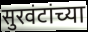
सुरवंटांच्या